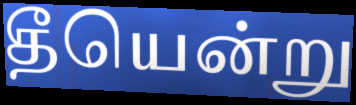
தீயென்று